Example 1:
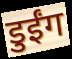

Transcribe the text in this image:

डुईंग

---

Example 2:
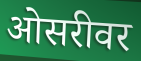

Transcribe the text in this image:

ओसरीवर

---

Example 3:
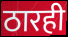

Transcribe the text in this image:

ठारही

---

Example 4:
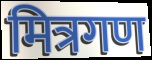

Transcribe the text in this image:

मित्रगण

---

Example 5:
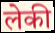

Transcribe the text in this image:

लेकी